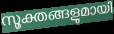
സൂക്തങ്ങളുമായി